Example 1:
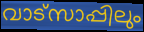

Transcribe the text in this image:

വാട്സാപ്പിലും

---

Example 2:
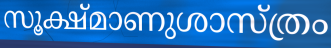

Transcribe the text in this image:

സൂക്ഷ്മാണുശാസ്ത്രം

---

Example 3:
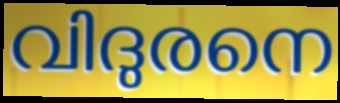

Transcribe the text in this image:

വിദുരനെ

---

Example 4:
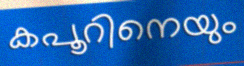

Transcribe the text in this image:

കപൂറിനെയും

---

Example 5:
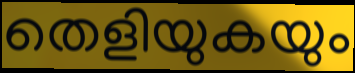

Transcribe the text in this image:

തെളിയുകയും